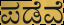
ಪಡೆವೆ